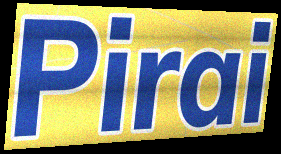
Pirai